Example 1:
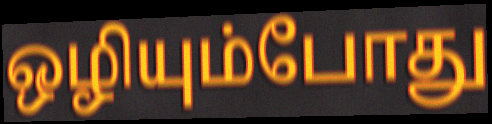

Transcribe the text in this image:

ஒழியும்போது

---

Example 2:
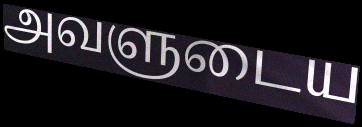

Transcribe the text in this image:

அவளுடைய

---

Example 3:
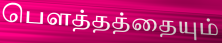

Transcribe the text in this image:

பெளத்தத்தையும்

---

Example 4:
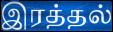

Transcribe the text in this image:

இரத்தல்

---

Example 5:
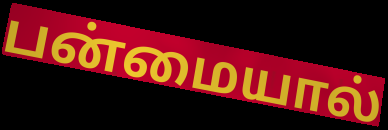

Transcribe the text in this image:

பன்மையால்